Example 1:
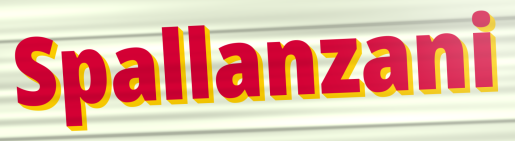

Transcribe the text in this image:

Spallanzani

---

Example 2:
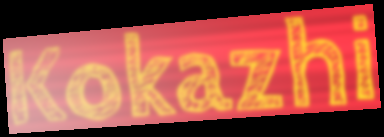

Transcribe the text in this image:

Kokazhi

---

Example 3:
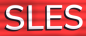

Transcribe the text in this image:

SLES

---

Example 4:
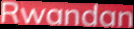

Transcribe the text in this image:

Rwandan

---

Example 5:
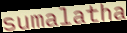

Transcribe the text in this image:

sumalatha